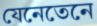
যেনেতেনে